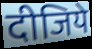
दीजिये